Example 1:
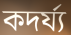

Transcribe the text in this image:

কদর্য্য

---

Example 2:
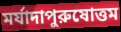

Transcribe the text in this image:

মর্যাদাপুরুষোত্তম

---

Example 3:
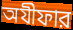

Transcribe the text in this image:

অযীফার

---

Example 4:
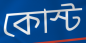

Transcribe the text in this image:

কোস্ট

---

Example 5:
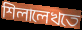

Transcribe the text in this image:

শিলালেখতে